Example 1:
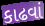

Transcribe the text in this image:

કાઢવાં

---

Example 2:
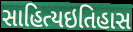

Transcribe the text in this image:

સાહિત્યઇતિહાસ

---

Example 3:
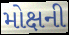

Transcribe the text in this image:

મોક્ષની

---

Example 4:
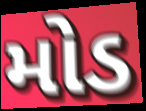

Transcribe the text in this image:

મોડ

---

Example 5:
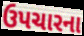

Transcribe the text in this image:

ઉપચારના